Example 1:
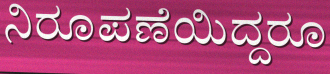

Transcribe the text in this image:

ನಿರೂಪಣೆಯಿದ್ದರೂ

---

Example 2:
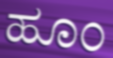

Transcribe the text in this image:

ಹೂಂ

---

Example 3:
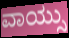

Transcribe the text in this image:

ವಾಯ್ಸು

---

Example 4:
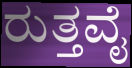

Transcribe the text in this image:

ರುತ್ತವೈ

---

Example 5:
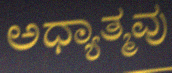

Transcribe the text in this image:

ಅಧ್ಯಾತ್ಮವು